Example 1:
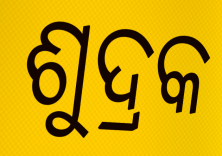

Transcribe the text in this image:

ଶୁଦ୍ରକ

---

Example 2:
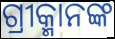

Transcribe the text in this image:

ଗ୍ରୀକ୍ମାନଙ୍କ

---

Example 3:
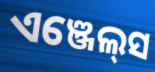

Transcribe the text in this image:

ଏଞ୍ଜେଲ୍‍ସ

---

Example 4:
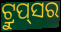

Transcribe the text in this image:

ଟ୍ରୁପ୍‌ସର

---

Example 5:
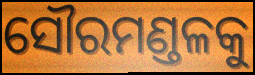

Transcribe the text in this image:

ସୌରମଣ୍ଡଳକୁ